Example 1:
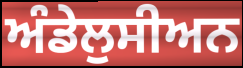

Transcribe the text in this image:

ਅੰਡੇਲੁਸੀਅਨ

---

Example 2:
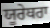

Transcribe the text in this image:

ਯੂਰੇਥਰਾ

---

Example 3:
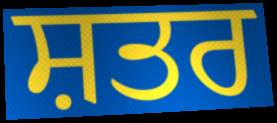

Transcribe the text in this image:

ਸ਼ਤਰ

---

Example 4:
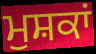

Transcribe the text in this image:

ਮੁਸ਼ਕਾਂ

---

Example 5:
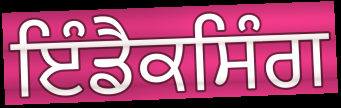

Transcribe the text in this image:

ਇੰਡੈਕਸਿੰਗ